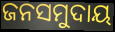
ଜନସମୁଦାୟ